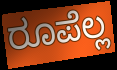
ರೂಪೆಲ್ಲ